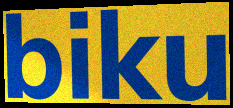
biku